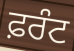
ਫ਼ਰੰਟ